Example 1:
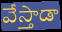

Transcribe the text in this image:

వేస్తాడా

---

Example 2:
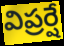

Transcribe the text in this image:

విప్రర్షే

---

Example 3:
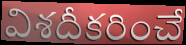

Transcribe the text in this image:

విశదీకరించే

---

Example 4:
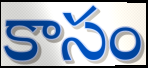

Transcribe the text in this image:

కాసం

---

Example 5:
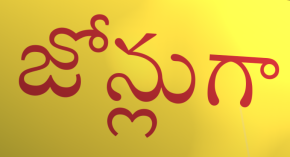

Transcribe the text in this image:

జోన్లుగా